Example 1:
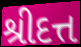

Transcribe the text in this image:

શ્રીદત્ત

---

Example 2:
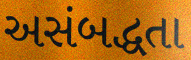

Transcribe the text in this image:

અસંબદ્ધતા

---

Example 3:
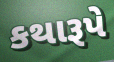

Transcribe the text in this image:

કથારૂપે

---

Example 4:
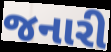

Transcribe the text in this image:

જનારી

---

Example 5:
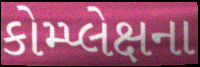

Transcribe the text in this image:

કોમ્પ્લેક્ષના